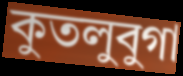
কুতলুবুগা